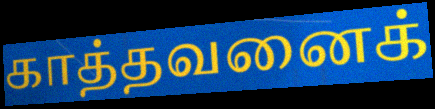
காத்தவனைக்